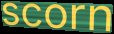
scorn